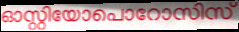
ഓസ്റ്റിയോപൊറോസിസ്